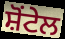
ਸ਼ੋਂਟੇਲ